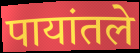
पायांतले